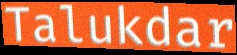
Talukdar